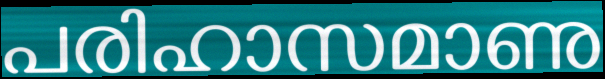
പരിഹാസമാണു